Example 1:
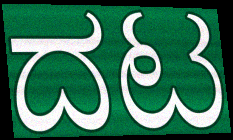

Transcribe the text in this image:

ದಟ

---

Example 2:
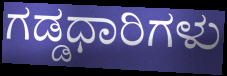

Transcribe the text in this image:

ಗಡ್ಡಧಾರಿಗಳು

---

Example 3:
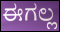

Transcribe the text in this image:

ಈಗಲ್ಲ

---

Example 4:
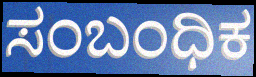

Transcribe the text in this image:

ಸಂಬಂಧಿಕ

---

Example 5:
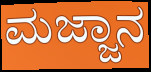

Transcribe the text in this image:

ಮಜ್ಜಾನ